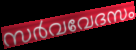
സർവവേദസം